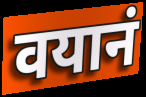
वयानं